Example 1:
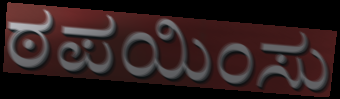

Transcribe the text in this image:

ಠಪಯಿಂಸು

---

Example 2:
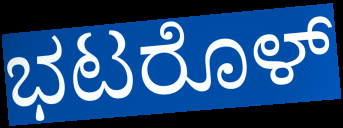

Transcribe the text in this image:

ಭಟರೊಳ್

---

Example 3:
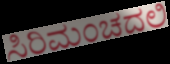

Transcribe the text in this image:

ಸಿರಿಮಂಚದಲಿ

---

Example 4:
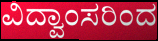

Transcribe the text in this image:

ವಿದ್ವಾಂಸರಿಂದ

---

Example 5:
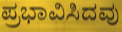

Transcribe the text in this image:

ಪ್ರಭಾವಿಸಿದವು